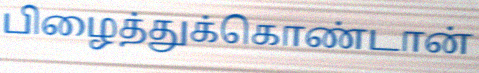
பிழைத்துக்கொண்டான்